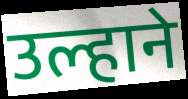
उल्हाने